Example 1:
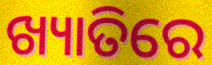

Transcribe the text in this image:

ଖ୍ୟାତିରେ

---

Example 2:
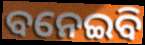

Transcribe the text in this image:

ବନେଇବି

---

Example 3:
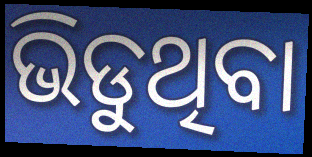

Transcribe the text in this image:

ଭିଡୁଥିବା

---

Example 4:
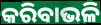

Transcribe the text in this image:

କରିବାଭଳି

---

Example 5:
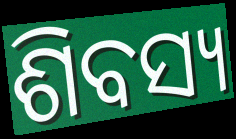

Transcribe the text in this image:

ଶିବସ୍ଯ